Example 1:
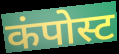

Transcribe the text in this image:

कंपोस्ट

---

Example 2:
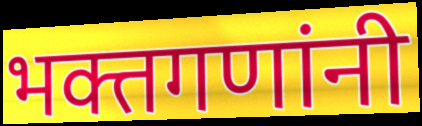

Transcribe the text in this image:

भक्तगणांनी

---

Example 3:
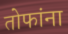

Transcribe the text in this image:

तोफांना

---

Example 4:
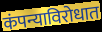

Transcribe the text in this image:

कंपन्याविरोधात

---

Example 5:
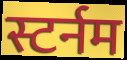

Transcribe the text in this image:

स्टर्नम